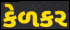
કેળકર